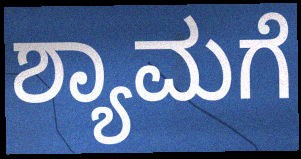
ಶ್ಯಾಮಗೆ